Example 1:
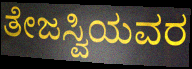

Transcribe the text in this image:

ತೇಜಸ್ವಿಯವರ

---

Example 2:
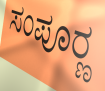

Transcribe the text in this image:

ಸಂಪೂರ್‍ಣ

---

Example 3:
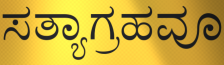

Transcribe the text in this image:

ಸತ್ಯಾಗ್ರಹವೂ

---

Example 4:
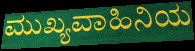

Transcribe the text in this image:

ಮುಖ್ಯವಾಹಿನಿಯ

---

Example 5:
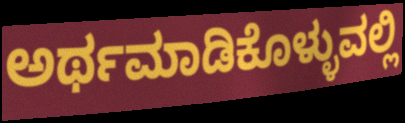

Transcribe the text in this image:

ಅರ್ಥಮಾಡಿಕೊಳ್ಳುವಲ್ಲಿ